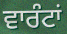
ਵਾਰੰਟਾਂ